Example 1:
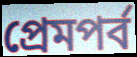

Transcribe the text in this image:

প্রেমপর্ব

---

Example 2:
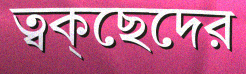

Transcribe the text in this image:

ত্বক্ছেদের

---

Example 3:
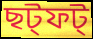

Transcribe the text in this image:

ছট্‌ফট্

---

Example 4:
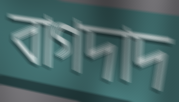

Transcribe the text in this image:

বাগদাদ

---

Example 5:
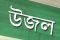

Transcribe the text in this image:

উজল